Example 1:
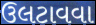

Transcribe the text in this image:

ઉલટાવવા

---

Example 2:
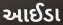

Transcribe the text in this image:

આઈડા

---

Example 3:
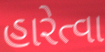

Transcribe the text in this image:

હારેત્વા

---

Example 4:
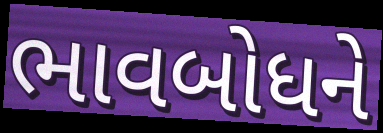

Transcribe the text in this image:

ભાવબોધને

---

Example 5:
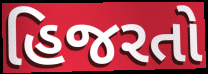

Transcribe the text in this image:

હિજરતો